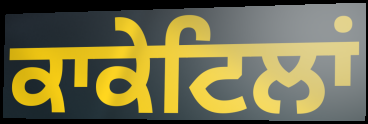
ਕਾਕੇਟਿਲਾਂ